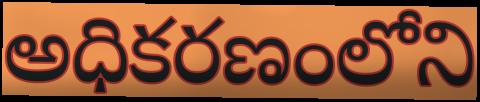
అధికరణంలోని